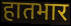
हातभार